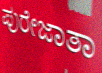
ಪುರೇಜಾತಾ